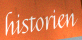
historien